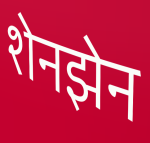
शेनझेन